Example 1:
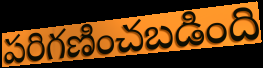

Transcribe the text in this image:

పరిగణించబడింది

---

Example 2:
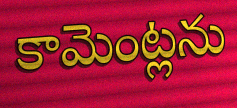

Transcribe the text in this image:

కామెంట్లను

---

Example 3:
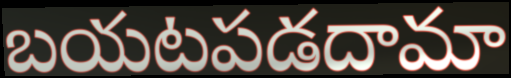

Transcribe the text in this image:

బయటపడదామా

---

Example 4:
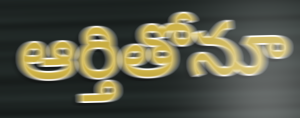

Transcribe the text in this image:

ఆర్తితోనూ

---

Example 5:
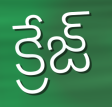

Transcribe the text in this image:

క్రేజ్